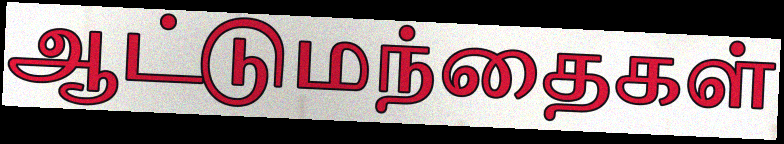
ஆட்டுமந்தைகள்